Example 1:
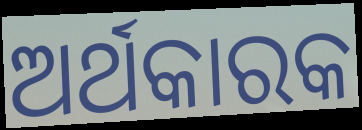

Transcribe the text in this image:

ଅର୍ଥକାରକ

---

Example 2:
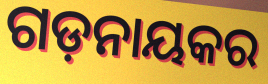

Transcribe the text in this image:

ଗଡ଼ନାୟକର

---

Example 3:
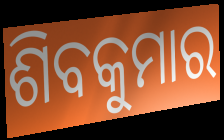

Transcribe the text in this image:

ଶିବକୁମାର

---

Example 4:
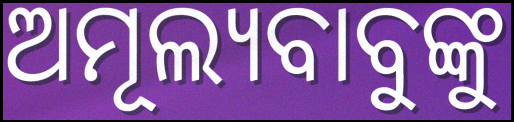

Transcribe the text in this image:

ଅମୂଲ୍ୟବାବୁଙ୍କୁ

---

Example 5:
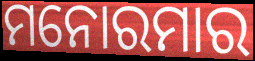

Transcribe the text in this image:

ମନୋରମାର